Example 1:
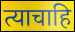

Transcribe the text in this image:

त्याचाहि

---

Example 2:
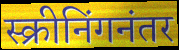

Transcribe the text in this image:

स्क्रीनिंगनंतर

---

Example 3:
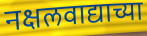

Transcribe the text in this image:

नक्षलवाद्याच्या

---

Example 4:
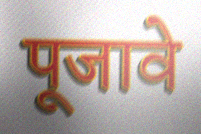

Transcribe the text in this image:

पूजावे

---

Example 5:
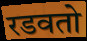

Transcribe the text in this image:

रडवतो